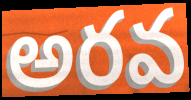
అరవ